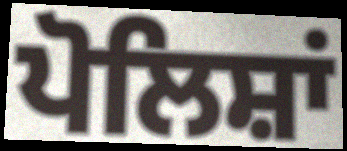
ਪੋਲਿਸ਼ਾਂ